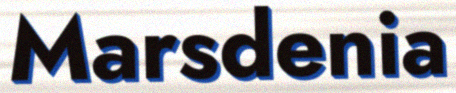
Marsdenia